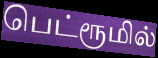
பெட்ரூமில்